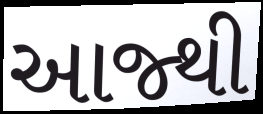
આજ્થી